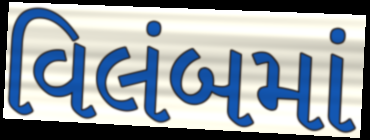
વિલંબમાં